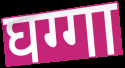
घग्गा